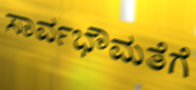
ಸಾರ್ವಭೌಮತೆಗೆ